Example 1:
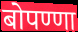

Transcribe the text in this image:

बोपण्णा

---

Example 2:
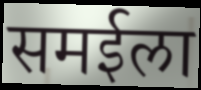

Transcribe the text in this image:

समईला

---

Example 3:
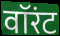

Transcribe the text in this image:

वॉरंट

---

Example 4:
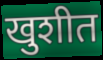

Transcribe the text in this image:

खुशीत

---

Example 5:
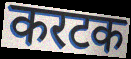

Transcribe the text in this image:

करटक